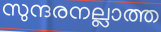
സുന്ദരനല്ലാത്ത